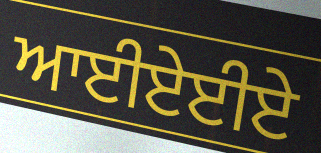
ਆਈਏਈਏ